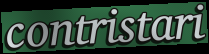
contristari